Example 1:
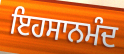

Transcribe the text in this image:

ਇਹਸਾਨਮੰਦ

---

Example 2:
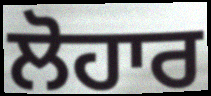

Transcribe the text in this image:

ਲੋਹਾਰ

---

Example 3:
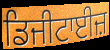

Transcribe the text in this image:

ਡਿਜੀਟਾਈਜ਼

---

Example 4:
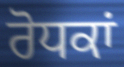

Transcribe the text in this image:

ਰੋਧਕਾਂ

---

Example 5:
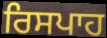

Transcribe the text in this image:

ਰਿਸਪਾਹ